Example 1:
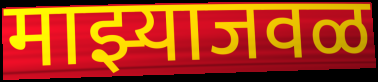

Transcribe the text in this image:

माझ्याजवळ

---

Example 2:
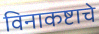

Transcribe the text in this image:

विनाकष्टाचे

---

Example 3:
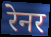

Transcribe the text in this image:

रेनर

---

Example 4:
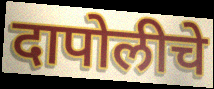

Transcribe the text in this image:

दापोलीचे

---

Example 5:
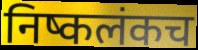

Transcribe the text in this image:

निष्कलंकच